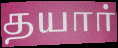
தயார்